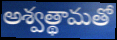
అశ్వత్థామతో